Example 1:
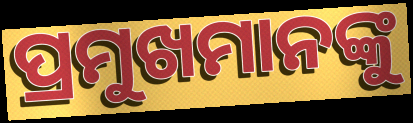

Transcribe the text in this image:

ପ୍ରମୁଖମାନଙ୍କୁ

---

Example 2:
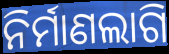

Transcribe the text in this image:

ନିର୍ମାଣଲାଗି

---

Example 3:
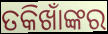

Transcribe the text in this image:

ତକିଖାଁଙ୍କର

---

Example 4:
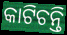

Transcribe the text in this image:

କାଟିଚନ୍ତି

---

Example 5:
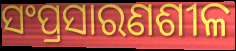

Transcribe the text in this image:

ସଂପ୍ରସାରଣଶୀଳ